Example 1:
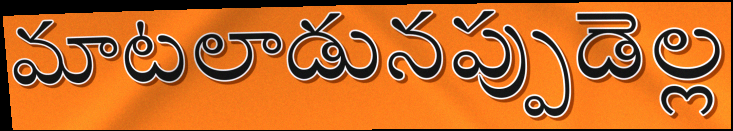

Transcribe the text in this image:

మాటలాడునప్పుడెల్ల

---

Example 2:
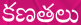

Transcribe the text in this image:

కణతలు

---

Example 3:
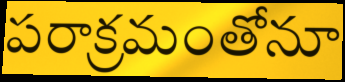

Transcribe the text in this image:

పరాక్రమంతోనూ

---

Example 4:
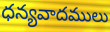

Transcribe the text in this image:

ధన్యవాదములు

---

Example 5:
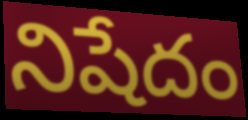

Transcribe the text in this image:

నిషేదం